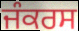
ਜੰਕਰਸ